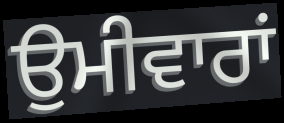
ਉਮੀਵਾਰਾਂ